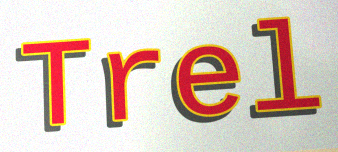
Trel